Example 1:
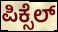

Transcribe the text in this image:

ಪಿಕ್ಸೆಲ್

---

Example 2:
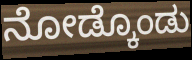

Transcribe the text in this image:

ನೋಡ್ಕೊಂಡು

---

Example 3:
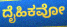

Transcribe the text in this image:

ದೈಹಿಕವೋ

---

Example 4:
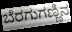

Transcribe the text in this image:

ಬೆರಗುಗಣ್ಣಿನ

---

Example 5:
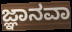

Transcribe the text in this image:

ಜ್ಞಾನವಾ